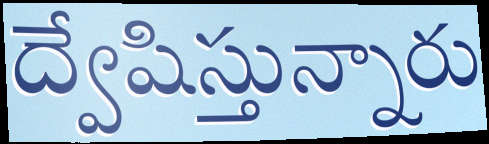
ద్వేషిస్తున్నారు